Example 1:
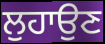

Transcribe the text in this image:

ਲੁਹਾਉਣ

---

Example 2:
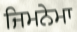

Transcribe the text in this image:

ਜਿਮਨੇਮਾ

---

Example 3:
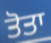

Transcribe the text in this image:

ਤੋਤਾ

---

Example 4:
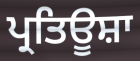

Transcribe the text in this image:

ਪ੍ਰਤਿਊਸ਼ਾ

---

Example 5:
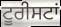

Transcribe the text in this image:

ਟੂਰੀਸਟਾਂ